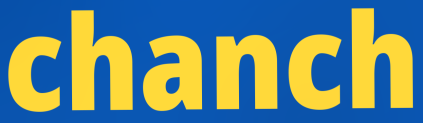
chanch